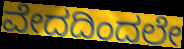
ವೇದದಿಂದಲೇ